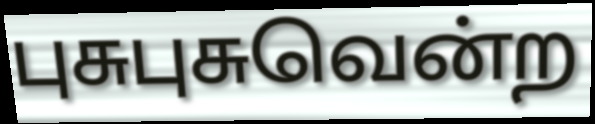
புசுபுசுவென்ற